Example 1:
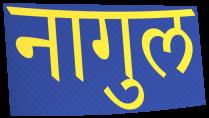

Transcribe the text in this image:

नागुल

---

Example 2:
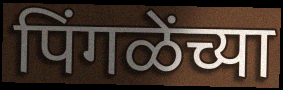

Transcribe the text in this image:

पिंगळेंच्या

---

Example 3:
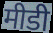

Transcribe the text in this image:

मीडी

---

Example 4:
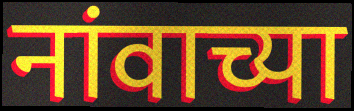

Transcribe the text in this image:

नांवाच्या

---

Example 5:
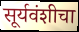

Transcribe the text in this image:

सूर्यवंशीचा